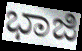
ಭಾಜಿ